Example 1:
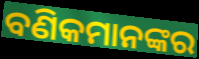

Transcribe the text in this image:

ବଣିକମାନଙ୍କର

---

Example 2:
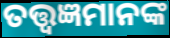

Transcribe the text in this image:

ତତ୍ତ୍ୱଜ୍ଞମାନଙ୍କ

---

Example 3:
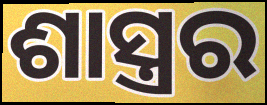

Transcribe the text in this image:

ଶାସ୍ତ୍ରର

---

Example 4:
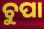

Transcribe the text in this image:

ଚୁପା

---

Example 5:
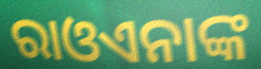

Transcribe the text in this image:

ରାଓଏନାଙ୍କ